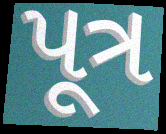
પૂત્ર